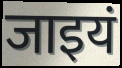
जाइयं